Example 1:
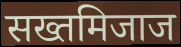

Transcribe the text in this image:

सख्तमिजाज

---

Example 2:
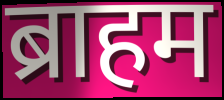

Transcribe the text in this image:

ब्राहम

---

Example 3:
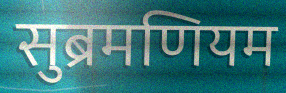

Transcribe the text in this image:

सुब्रमणियम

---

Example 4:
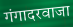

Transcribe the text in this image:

गंगादरवाजा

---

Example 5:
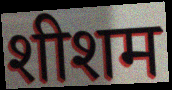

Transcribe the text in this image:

शीशम